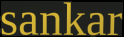
sankar